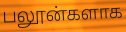
பலூன்களாக